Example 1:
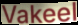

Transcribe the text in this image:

Vakeel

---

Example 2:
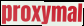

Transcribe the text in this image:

proxymal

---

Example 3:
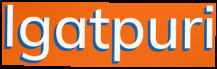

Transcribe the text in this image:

Igatpuri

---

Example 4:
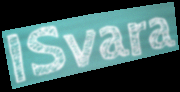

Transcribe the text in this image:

ISvara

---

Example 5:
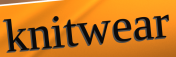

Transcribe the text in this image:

knitwear